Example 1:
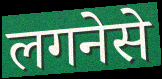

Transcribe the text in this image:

लगनेसे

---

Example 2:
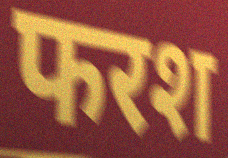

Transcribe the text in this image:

फरश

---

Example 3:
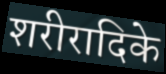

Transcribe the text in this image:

शरीरादिके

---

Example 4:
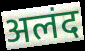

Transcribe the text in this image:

अलंद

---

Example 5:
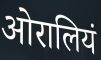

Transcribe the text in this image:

ओरालियं